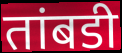
तांबडी